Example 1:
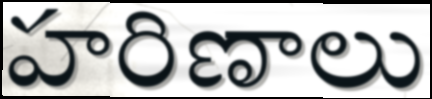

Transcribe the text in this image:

హరిణాలు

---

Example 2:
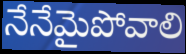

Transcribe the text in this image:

నేనేమైపోవాలి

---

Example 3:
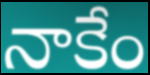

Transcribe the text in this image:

నాకేం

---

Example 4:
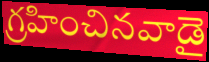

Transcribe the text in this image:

గ్రహించినవాడై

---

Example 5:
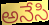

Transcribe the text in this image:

అనేసి